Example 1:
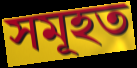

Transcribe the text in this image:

সমূহত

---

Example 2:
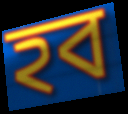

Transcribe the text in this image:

হব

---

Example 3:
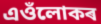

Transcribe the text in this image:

এওঁলোকৰ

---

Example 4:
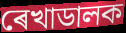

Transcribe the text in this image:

ৰেখাডালক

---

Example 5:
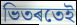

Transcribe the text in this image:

ভিতৰতেই